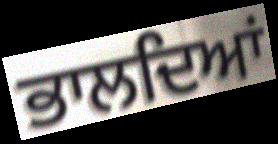
ਭਾਲਦਿਆਂ